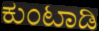
ಕುಂಟಾಡಿ